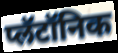
प्लॅटॉनिक